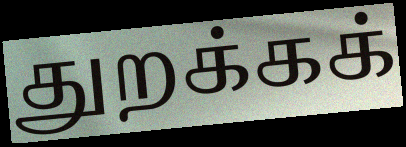
துறக்கக்